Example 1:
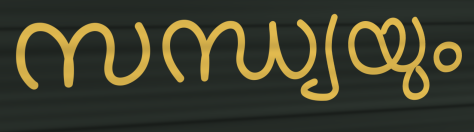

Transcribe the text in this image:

സന്ധ്യയും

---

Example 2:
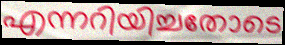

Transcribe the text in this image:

എന്നറിയിച്ചതോടെ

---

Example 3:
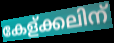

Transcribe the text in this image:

കേള്ക്കലിന്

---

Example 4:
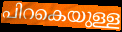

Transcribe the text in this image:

പിറകെയുള്ള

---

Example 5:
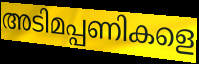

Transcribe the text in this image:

അടിമപ്പണികളെ